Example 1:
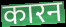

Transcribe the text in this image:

कारन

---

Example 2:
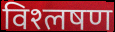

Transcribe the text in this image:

विश्लषण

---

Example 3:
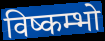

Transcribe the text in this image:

विष्कम्भो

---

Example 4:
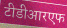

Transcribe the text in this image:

टीडीआरएफ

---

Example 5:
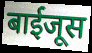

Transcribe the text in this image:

बाईजूस